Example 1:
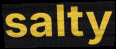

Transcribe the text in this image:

salty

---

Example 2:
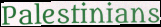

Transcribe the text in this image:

Palestinians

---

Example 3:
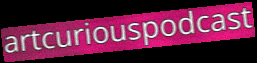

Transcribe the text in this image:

artcuriouspodcast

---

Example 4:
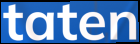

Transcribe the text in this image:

taten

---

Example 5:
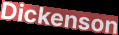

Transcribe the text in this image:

Dickenson